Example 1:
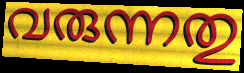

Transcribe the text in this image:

വരുന്നതു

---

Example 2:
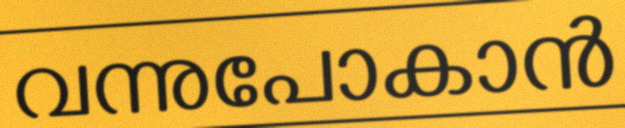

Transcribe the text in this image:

വന്നുപോകാൻ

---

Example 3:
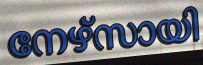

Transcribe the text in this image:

നേഴ്സായി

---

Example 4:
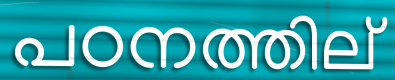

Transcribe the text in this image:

പഠനത്തില്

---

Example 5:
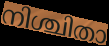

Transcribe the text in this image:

നിശ്ചിതാ